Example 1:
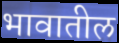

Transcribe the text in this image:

भावातील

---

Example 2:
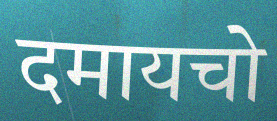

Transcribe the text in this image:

दमायचो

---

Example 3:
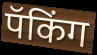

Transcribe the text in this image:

पॅकिंग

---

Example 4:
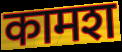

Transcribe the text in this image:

कामश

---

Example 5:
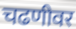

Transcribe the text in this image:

चढणीवर